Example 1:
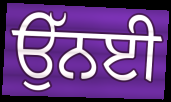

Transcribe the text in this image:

ਉੱਨਈ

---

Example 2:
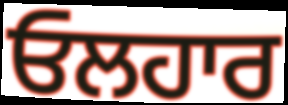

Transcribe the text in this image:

ਓਲਹਾਰ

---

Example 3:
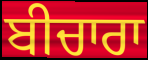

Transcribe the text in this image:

ਬੀਚਾਰਾ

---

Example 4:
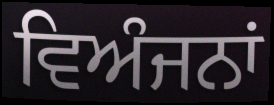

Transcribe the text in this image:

ਵਿਅੰਜਨਾਂ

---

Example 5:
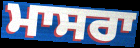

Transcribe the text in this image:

ਮਾਸਰਾ